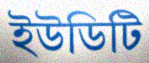
ইউডিটি